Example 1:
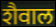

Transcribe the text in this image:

शैवाल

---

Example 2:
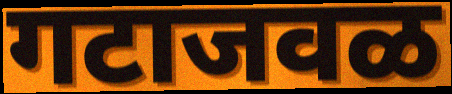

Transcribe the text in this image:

गटाजवळ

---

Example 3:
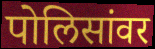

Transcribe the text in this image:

पोलिसांवर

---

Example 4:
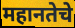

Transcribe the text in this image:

महानतेचे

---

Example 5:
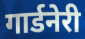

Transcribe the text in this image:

गार्डनेरी